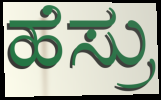
ಹೆಸ್ರು